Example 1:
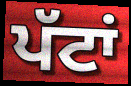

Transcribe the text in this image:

ਪੱਟਾਂ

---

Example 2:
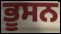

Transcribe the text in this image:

ਭੂਸਨ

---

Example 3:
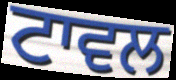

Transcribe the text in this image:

ਟਾਵਲ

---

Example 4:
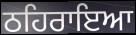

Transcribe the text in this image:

ਠਹਿਰਾਇਆ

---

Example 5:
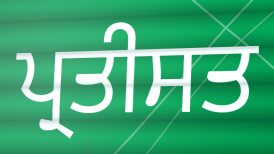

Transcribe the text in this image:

ਪ੍ਰਤੀਸਤ